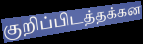
குறிப்பிடத்தக்கன